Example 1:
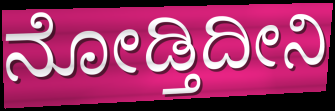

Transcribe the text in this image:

ನೋಡ್ತಿದೀನಿ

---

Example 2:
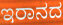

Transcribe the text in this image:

ಇರಾನದ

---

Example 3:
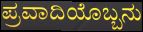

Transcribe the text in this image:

ಪ್ರವಾದಿಯೊಬ್ಬನು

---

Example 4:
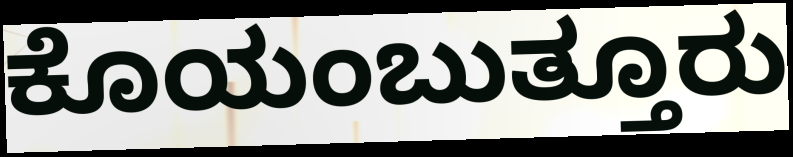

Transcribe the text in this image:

ಕೊಯಂಬುತ್ತೂರು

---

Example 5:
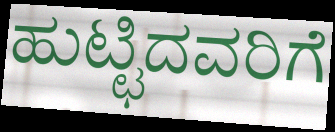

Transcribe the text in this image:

ಹುಟ್ಟಿದವರಿಗೆ